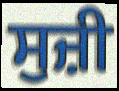
ਸੁਜ਼ੀ